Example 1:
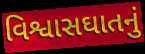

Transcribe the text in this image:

વિશ્વાસઘાતનું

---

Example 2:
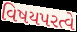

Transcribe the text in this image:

વિષયપરત્વે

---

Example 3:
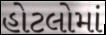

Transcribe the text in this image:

હોટલોમાં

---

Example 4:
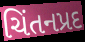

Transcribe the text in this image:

ચિંતનપ્રદ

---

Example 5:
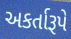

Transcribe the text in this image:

અકર્તારૂપે